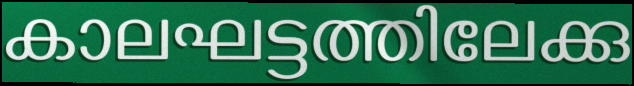
കാലഘട്ടത്തിലേക്കു